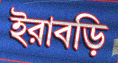
ইরাবড়ি